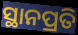
ସ୍ଥାନପ୍ରତି